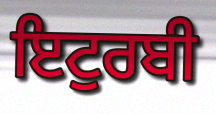
ਇਟੁਰਬੀ